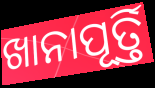
ଖାନାପୂର୍ତ୍ତି